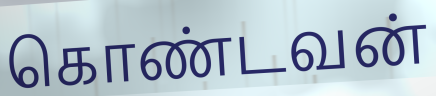
கொண்டவன்